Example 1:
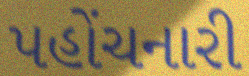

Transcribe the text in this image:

પહોંચનારી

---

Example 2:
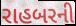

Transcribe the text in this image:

રાહબરની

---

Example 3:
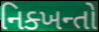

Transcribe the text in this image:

નિક્ખન્તો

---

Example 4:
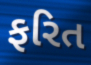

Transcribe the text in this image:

ફરિત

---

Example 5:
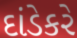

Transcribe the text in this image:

દાંડેકરે